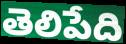
తెలిపేది